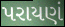
પરાયણં